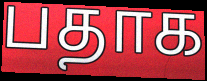
பதாக